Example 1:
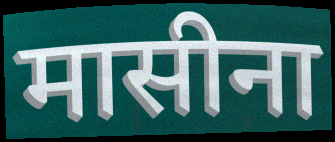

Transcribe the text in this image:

मासीना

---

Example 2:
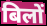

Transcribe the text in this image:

बिलों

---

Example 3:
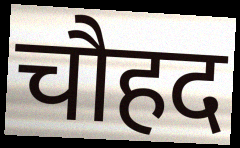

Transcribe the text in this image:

चौहद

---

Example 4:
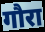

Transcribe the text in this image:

गौरा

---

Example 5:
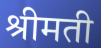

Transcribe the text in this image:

श्रीमती